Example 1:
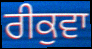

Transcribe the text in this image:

ਰੀਕੁਵਾ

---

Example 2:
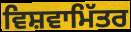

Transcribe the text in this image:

ਵਿਸ਼ਵਾਮਿੱਤਰ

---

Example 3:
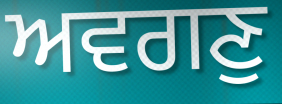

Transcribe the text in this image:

ਅਵਗਣੁ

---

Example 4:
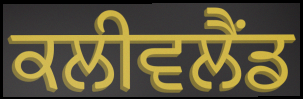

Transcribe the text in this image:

ਕਲੀਵਲੈਂਡ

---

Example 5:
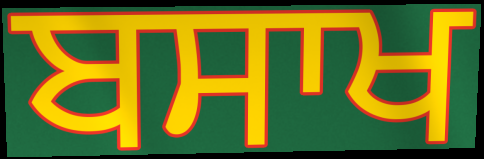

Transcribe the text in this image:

ਬਸਾਖ